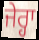
ਜੇਰ੍ਹਾ